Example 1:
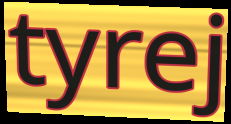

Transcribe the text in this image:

tyrej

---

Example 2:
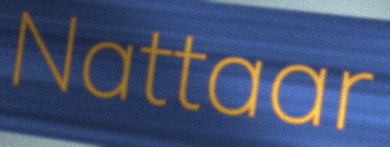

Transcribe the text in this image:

Nattaar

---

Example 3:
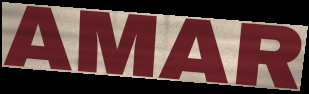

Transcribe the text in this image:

AMAR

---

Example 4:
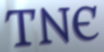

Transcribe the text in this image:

TNE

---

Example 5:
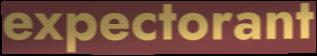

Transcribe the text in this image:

expectorant